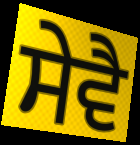
ਸੇਵੈ